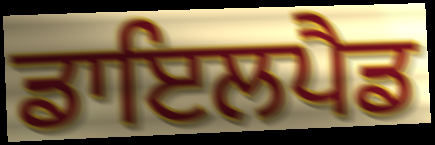
ਡਾਇਲਪੈਡ